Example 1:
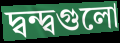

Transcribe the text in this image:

দ্বন্দ্বগুলো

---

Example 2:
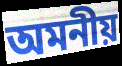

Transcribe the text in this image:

অমনীয়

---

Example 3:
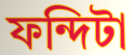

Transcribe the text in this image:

ফন্দিটা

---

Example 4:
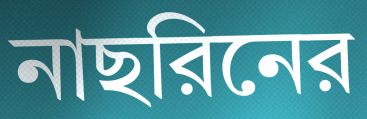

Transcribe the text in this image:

নাছরিনের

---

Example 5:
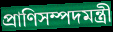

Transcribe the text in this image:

প্রাণিসম্পদমন্ত্রী